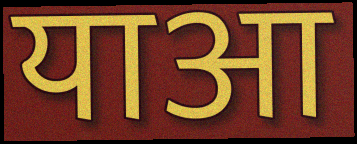
याआ